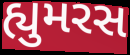
હ્યુમરસ